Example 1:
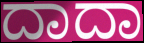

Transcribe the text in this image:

ದಾದಾ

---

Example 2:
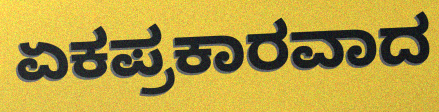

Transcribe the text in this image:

ಏಕಪ್ರಕಾರವಾದ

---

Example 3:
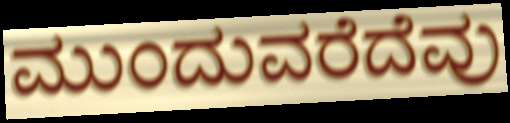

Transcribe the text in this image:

ಮುಂದುವರೆದೆವು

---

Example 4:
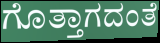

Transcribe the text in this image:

ಗೊತ್ತಾಗದಂತೆ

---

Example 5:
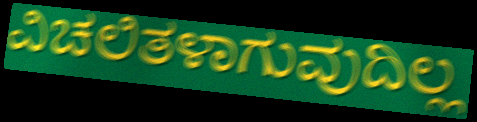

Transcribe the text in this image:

ವಿಚಲಿತಳಾಗುವುದಿಲ್ಲ